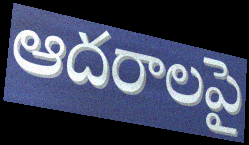
ఆదరాలపై